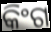
କିଂଗ